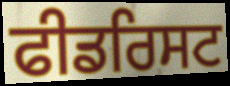
ਫੀਡਰਿਸਟ